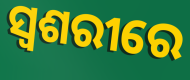
ସ୍ୱଶରୀରେ